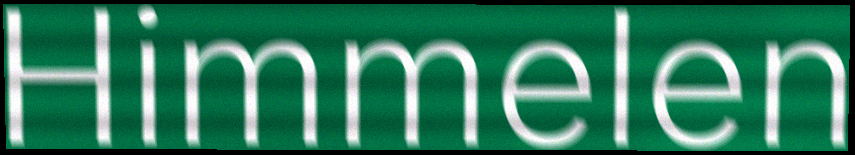
Himmelen